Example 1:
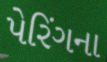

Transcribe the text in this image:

પેરિંગના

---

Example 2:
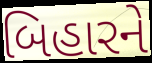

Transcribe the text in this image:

બિહારને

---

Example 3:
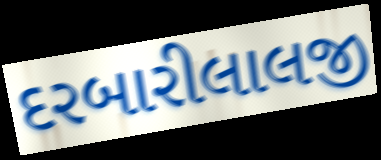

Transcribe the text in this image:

દરબારીલાલજી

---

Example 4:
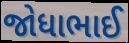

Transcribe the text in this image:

જોધાભાઈ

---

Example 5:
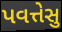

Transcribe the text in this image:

પવત્તેસુ